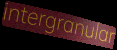
intergranular